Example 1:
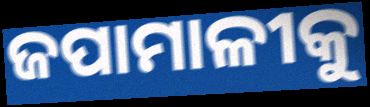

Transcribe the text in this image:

ଜପାମାଳୀକୁ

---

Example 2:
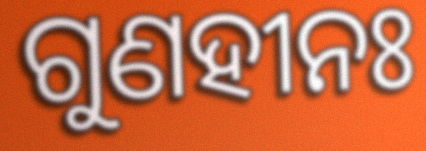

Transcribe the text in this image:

ଗୁଣହୀନଃ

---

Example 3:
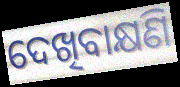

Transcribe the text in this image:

ଦେଖିବାକ୍ଷଣି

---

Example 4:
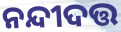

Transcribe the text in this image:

ନନ୍ଦୀଦତ୍ତ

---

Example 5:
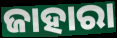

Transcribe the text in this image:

ଜାହାରା